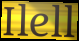
Ilell